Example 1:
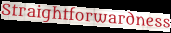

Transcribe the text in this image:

Straightforwardness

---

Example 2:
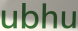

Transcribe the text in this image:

ubhu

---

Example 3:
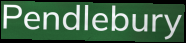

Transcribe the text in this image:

Pendlebury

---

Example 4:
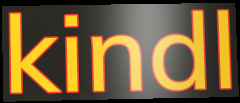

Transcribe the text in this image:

kindl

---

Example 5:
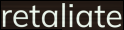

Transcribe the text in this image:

retaliate